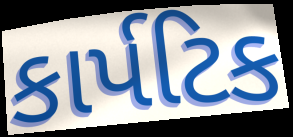
કાર્પટિક